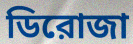
ডিরোজা